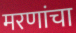
मरणांचा